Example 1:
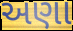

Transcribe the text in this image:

અણા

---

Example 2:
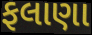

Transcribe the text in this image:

ફલાણા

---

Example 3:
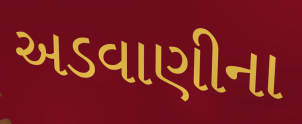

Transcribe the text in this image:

અડવાણીના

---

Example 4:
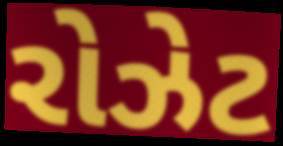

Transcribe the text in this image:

રોઝેટ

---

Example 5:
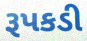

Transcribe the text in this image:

રૂપકડી